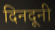
दिनदूनी